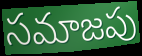
సమాజపు